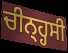
ਚੀਨ੍ਹ੍ਹਸੀ